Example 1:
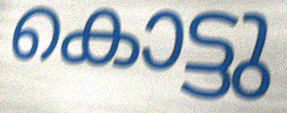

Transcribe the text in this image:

കൊട്ടു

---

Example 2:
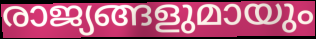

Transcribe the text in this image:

രാജ്യങ്ങളുമായും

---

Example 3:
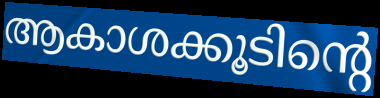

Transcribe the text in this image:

ആകാശക്കൂടിന്റെ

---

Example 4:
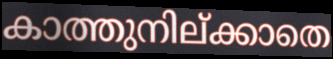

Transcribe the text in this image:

കാത്തുനില്ക്കാതെ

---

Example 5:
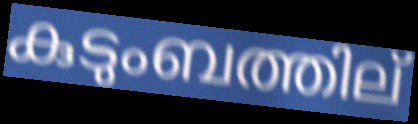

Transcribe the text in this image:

കുടുംബത്തില്